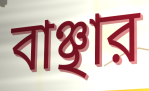
বাঞ্ছার